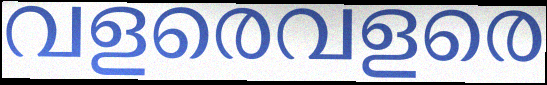
വളരെവളരെ